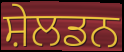
ਸ਼ੇਲਡਨ